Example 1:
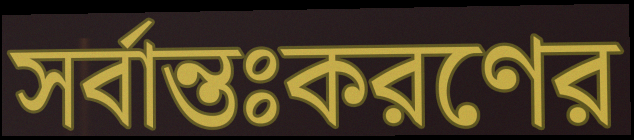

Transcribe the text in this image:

সর্বান্তঃকরণের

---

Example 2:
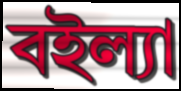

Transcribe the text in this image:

বইল্যা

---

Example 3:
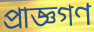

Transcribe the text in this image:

প্রাজ্ঞগণ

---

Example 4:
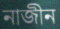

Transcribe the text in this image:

নাজীন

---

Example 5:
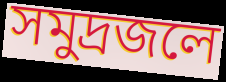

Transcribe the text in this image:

সমুদ্রজলে